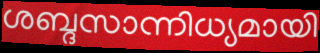
ശബ്ദസാന്നിധ്യമായി